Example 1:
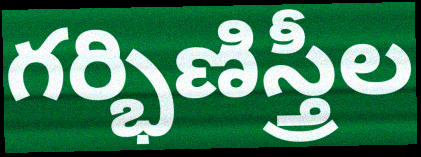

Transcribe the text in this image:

గర్భిణిస్త్రీల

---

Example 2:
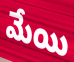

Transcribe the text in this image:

మేయి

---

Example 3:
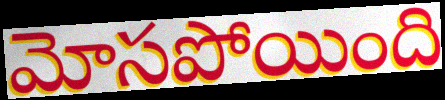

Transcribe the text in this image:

మోసపోయింది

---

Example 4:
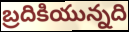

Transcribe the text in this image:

బ్రదికియున్నది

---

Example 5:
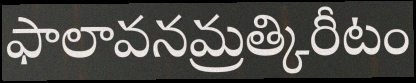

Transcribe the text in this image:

ఫాలావనమ్రత్కిరీటం